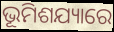
ଭୂମିଶଯ୍ୟାରେ